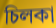
চিলকা